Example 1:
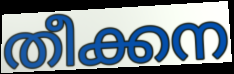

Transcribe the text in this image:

തീക്കന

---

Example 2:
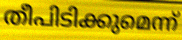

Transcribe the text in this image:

തീപിടിക്കുമെന്ന്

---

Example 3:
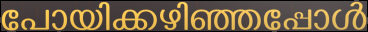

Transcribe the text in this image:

പോയിക്കഴിഞ്ഞപ്പോൾ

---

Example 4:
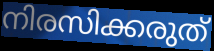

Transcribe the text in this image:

നിരസിക്കരുത്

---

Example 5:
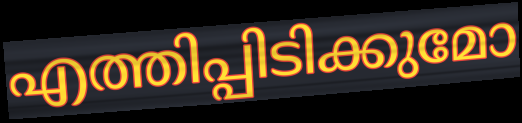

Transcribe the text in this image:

എത്തിപ്പിടിക്കുമോ